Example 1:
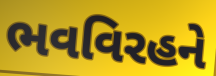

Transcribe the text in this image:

ભવવિરહને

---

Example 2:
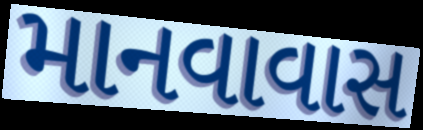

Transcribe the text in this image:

માનવાવાસ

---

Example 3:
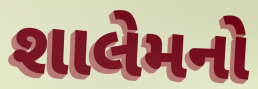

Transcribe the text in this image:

શાલેમનો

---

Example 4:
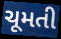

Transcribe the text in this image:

ચૂમતી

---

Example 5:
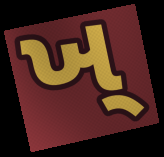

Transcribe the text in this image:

ખ્